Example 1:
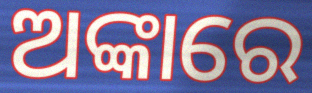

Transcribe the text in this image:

ଅଙ୍କାରେ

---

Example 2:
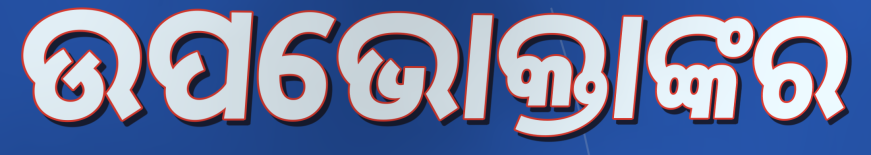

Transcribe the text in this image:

ଉପଭୋକ୍ତାଙ୍କର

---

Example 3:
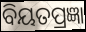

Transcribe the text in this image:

ବିୟତପ୍ରଜ୍ଞା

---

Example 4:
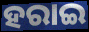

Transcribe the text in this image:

ହରାଇ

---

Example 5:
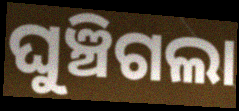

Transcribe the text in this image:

ଘୁଞ୍ଚିଗଲା